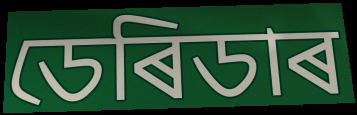
ডেৰিডাৰ